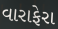
વારાફેરા